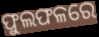
ଫୁଲଫଳରେ